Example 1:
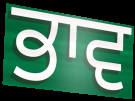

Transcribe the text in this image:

ਭਾਵ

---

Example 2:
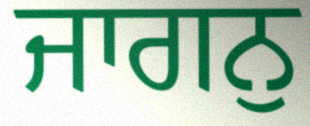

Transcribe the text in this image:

ਜਾਗਨੁ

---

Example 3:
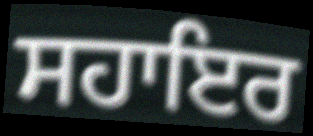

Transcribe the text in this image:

ਸਹਾਇਰ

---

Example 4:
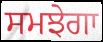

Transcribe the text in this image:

ਸਮਝੇਗਾ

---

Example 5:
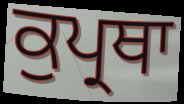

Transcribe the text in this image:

ਕੁਪ੍ਰਥਾ